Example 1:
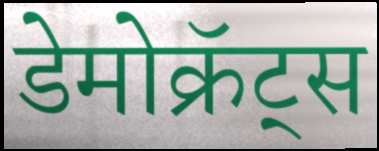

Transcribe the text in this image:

डेमोक्रॅट्स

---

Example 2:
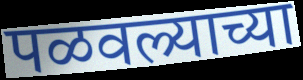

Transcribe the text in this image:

पळवल्याच्या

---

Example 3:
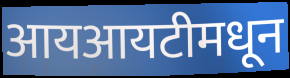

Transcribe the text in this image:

आयआयटीमधून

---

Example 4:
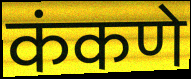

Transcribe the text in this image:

कंकणे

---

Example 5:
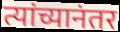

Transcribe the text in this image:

त्यांच्यानंतर